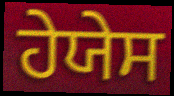
ਹੇਯੇਸ